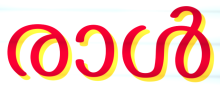
രാൾ